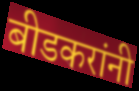
बीडकरांनी